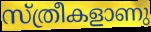
സ്ത്രീകളാണു